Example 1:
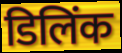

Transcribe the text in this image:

डिलिंक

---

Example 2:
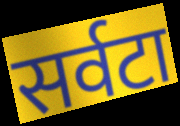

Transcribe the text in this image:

सर्वटा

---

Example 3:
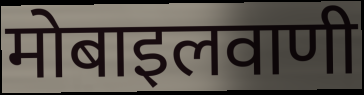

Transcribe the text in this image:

मोबाइलवाणी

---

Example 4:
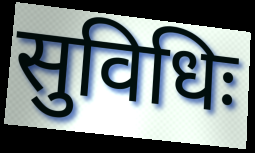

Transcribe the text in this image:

सुविधिः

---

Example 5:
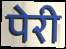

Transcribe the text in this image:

पेरी